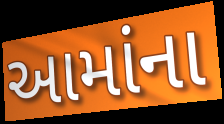
આમાંના